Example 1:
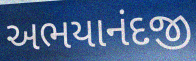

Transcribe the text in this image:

અભયાનંદજી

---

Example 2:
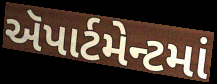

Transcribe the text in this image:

ઍપાર્ટમેન્ટમાં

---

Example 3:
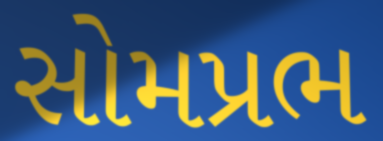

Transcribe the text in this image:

સોમપ્રભ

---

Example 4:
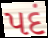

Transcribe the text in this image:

પદં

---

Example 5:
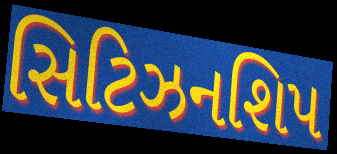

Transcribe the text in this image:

સિટિઝનશિપ